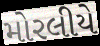
મોરલીયે